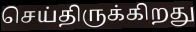
செய்திருக்கிறது